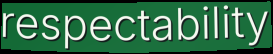
respectability